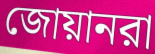
জোয়ানরা